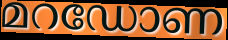
മറഡോണ